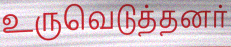
உருவெடுத்தனர்